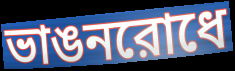
ভাঙনরোধে